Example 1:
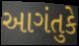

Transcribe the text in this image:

આગંતુકે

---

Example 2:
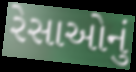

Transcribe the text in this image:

રેસાઓનું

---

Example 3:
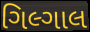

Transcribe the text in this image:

ગિલ્ગાલ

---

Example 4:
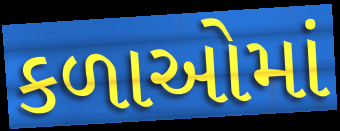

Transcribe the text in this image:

કળાઓમાં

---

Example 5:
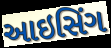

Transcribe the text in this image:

આઇસિંગ